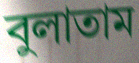
বুলাতাম